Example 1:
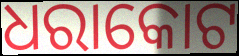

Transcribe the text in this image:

ଧରାକୋଟ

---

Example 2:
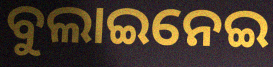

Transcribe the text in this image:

ବୁଲାଇନେଇ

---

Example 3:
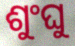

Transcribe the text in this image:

ଶୁଂଘୁ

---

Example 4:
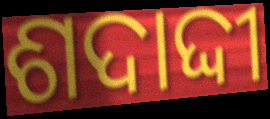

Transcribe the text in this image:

ଶଦାଦ୍ଦୀ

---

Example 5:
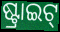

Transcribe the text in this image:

ଷ୍ଟ୍ରାଇଟ୍